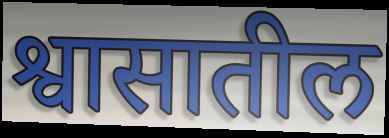
श्वासातील